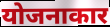
योजनाकार